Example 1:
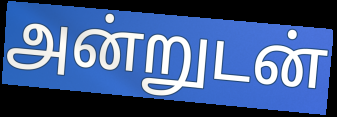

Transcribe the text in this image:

அன்றுடன்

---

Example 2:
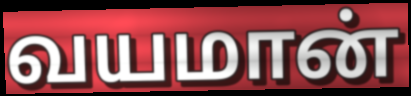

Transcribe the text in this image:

வயமான்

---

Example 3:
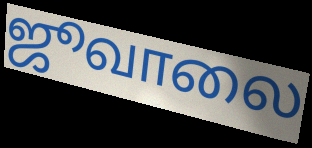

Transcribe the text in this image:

ஜூவாலை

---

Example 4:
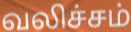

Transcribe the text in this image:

வலிச்சம்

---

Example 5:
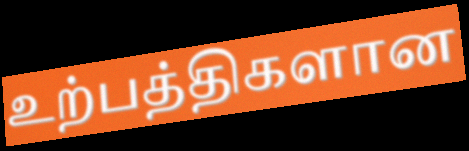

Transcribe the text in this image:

உற்பத்திகளான